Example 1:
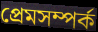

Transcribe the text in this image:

প্রেমসম্পর্ক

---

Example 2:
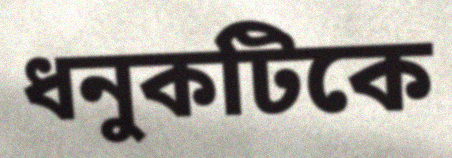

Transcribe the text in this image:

ধনুকটিকে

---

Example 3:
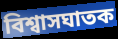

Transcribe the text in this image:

বিশ্বাসঘাতক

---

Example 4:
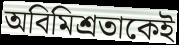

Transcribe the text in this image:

অবিমিশ্রতাকেই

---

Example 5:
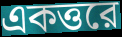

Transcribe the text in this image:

একত্তরে